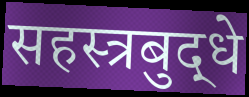
सहस्त्रबुद्धे